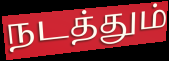
நடத்தும்